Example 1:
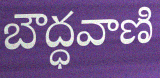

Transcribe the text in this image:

బౌద్ధవాణి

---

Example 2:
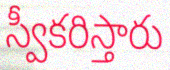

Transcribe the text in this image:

స్వీకరిస్తారు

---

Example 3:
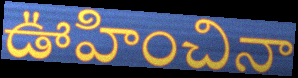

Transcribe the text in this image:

ఊహించినా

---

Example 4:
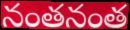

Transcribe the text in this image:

నంతనంత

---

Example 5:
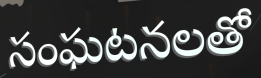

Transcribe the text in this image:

సంఘటనలతో